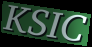
KSIC